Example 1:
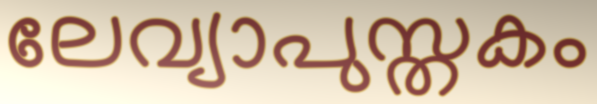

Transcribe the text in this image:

ലേവ്യാപുസ്തകം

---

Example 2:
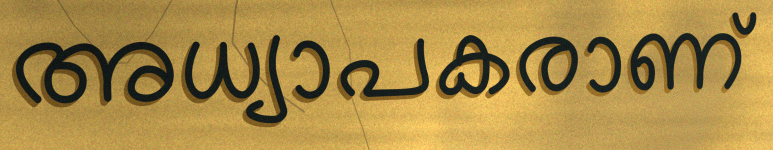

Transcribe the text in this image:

അധ്യാപകരാണ്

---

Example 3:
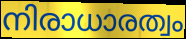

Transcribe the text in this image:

നിരാധാരത്വം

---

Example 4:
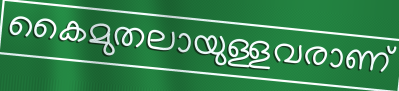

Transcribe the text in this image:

കൈമുതലായുള്ളവരാണ്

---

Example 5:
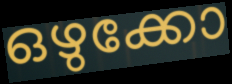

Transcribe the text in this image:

ഒഴുക്കോ